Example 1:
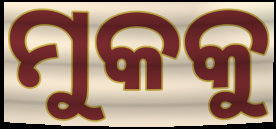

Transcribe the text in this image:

ମୁକକୁ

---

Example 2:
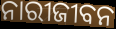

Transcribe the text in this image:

ନାରୀଜୀବନ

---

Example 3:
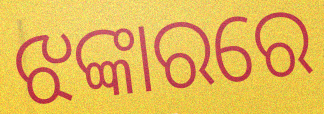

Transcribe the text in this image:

ଝଙ୍କାରରେ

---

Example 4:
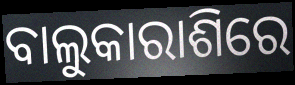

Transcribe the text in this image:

ବାଲୁକାରାଶିରେ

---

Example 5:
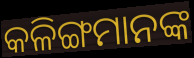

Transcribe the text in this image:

କଳିଙ୍ଗମାନଙ୍କ